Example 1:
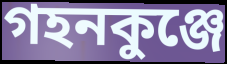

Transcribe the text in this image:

গহনকুঞ্জে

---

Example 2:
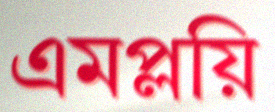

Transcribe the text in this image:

এমপ্লয়ি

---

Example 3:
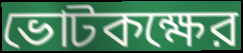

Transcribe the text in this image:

ভোটকক্ষের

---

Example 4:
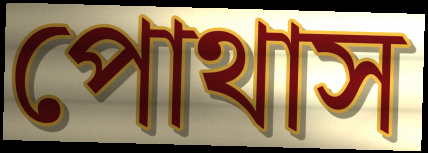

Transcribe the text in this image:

পোথাস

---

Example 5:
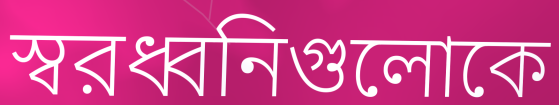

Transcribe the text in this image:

স্বরধ্বনিগুলোকে